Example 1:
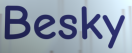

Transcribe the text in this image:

Besky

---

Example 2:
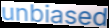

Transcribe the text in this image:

unbiased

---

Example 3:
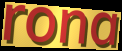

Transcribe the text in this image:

rona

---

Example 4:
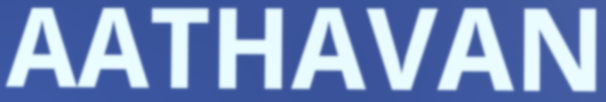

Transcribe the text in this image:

AATHAVAN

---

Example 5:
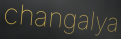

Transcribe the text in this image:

changalya